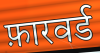
फ़ारवर्ड